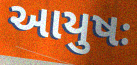
આયુષઃ